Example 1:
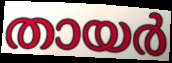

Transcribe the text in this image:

തായർ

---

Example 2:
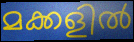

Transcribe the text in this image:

മക്കളിൽ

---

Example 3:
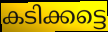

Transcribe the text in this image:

കടിക്കട്ടെ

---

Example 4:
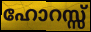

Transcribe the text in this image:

ഹോറസ്സ്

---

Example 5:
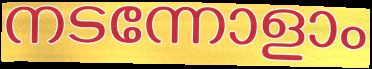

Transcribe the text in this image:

നടന്നോളാം